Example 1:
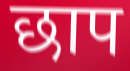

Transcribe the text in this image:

छाप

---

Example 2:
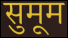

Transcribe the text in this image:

सुमूम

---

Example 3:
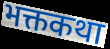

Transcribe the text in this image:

भक्तकथा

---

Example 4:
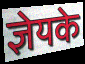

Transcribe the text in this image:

ज्ञेयके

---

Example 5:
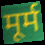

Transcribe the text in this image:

मूर्म